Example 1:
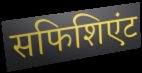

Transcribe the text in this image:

सफिशिएंट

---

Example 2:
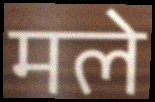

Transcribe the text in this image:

मले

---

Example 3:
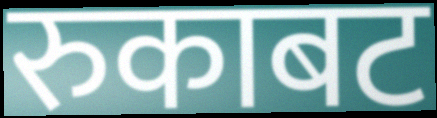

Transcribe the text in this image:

रुकाबट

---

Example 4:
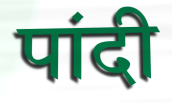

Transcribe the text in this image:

पांदी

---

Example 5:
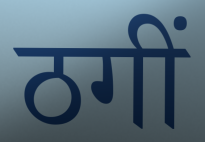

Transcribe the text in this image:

ठगीं